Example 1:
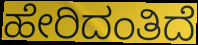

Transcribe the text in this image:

ಹೇರಿದಂತಿದೆ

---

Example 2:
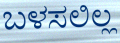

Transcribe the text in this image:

ಬಳಸಲಿಲ್ಲ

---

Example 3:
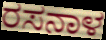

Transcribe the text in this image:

ರಸನಾಳ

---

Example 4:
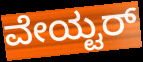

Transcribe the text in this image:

ವೇಯ್ಟರ್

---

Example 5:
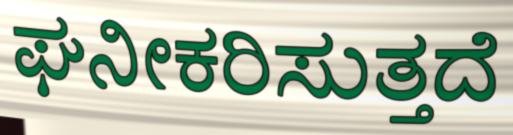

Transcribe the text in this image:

ಘನೀಕರಿಸುತ್ತದೆ